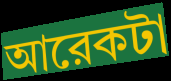
আরেকটা